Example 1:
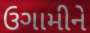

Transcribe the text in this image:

ઉગામીને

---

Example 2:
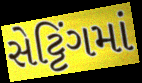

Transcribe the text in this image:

સેટ્ટિંગમાં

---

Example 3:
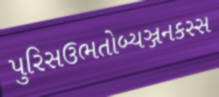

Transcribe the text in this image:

પુરિસઉભતોબ્યઞ્જનકસ્સ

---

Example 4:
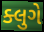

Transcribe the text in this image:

ક્લુગે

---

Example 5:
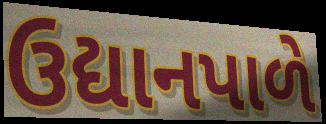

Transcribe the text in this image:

ઉદ્યાનપાળે